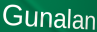
Gunalan